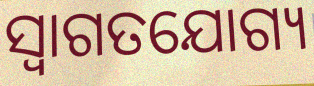
ସ୍ବାଗତଯୋଗ୍ୟ